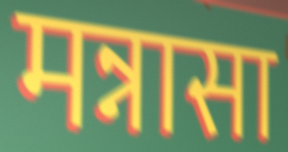
मन्नासा